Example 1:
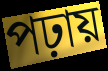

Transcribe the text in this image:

পঢ়ায়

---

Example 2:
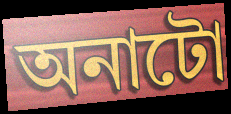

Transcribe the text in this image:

অনাটো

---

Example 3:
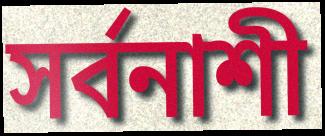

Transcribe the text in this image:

সৰ্বনাশী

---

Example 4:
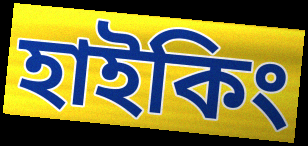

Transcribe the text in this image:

হাইকিং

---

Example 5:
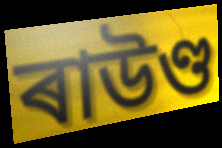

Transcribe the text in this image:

ৰাউণ্ড